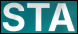
STA